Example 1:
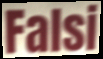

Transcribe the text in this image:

Falsi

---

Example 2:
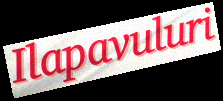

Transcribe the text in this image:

Ilapavuluri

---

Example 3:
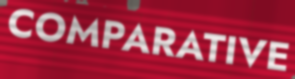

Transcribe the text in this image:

COMPARATIVE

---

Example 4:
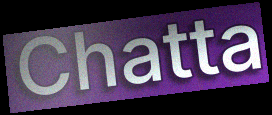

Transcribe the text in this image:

Chatta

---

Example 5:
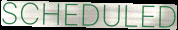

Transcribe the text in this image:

SCHEDULED